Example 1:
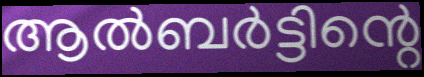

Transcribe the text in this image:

ആൽബർട്ടിന്റെ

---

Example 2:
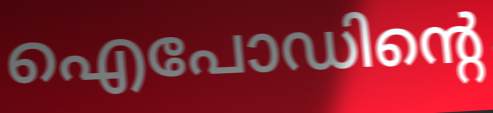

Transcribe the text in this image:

ഐപോഡിന്റെ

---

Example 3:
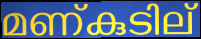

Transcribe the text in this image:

മണ്കുടില്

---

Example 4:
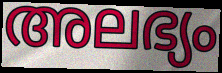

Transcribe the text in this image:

അലഭ്യം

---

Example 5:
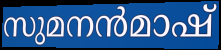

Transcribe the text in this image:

സുമനൻമാഷ്